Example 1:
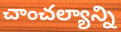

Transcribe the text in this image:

చాంచల్యాన్ని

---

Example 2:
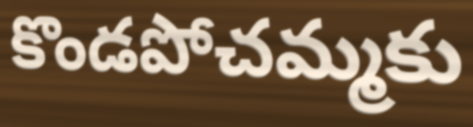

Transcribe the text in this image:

కొండపోచమ్మకు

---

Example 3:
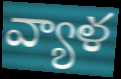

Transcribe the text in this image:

వ్యాళ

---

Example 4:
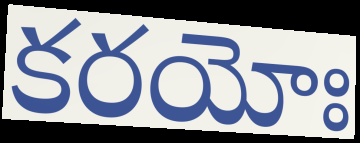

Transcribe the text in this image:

కరయోః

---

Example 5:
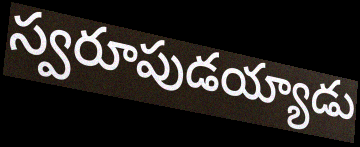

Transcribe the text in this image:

స్వరూపుడయ్యాడు